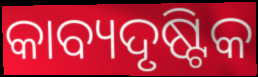
କାବ୍ୟଦୃଷ୍ଟିକ